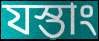
যস্তাং